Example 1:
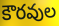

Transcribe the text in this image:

కౌరవుల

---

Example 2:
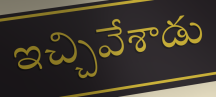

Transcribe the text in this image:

ఇచ్చివేశాడు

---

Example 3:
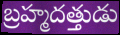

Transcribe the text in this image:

బ్రహ్మదత్తుడు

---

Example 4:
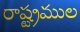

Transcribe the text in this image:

రాష్ట్రముల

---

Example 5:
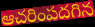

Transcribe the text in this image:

ఆచరింపదగిన